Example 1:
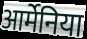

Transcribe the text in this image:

आर्मेनिया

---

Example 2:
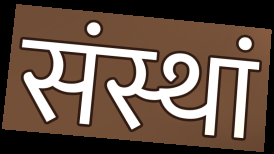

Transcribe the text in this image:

संस्थां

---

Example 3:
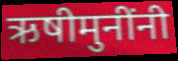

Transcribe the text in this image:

ऋषीमुनींनी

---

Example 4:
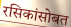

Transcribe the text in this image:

रसिकांसोबत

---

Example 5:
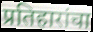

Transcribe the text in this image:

प्रतिहारांचा